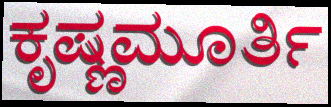
ಕೃಷ್ಣಮೂರ್ತಿ